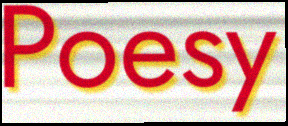
Poesy